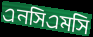
এনসিএমসি